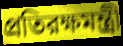
প্রতিরক্ষমন্ত্রী